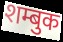
शम्बुक